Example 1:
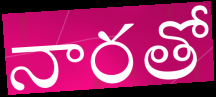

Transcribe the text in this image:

నారతో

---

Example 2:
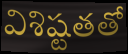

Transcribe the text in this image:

విశిష్టతతో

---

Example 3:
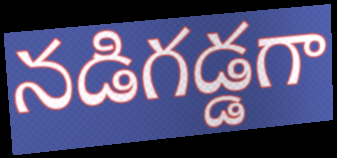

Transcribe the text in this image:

నడిగడ్డగా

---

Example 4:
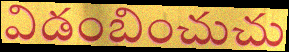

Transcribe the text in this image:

విడంబించుచు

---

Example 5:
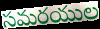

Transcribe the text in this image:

సమరయుల